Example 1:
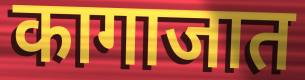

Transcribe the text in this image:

कागाजात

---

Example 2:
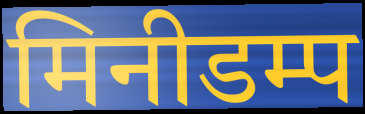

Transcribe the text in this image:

मिनीडम्प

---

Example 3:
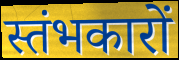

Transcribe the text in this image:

स्तंभकारों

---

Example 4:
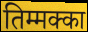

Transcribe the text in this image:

तिम्मक्का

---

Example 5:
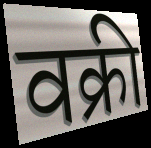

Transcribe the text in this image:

वक्री